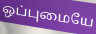
ஒப்புமையே